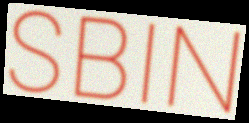
SBIN